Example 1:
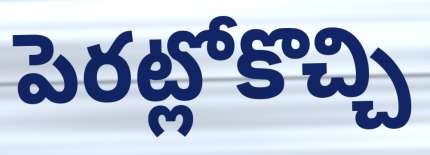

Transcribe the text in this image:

పెరట్లోకొచ్చి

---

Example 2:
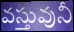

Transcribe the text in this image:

వస్తువునీ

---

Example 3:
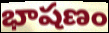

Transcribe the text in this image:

భాషణం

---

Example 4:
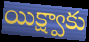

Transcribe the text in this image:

యిక్ష్వాకు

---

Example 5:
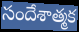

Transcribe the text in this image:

సందేశాత్మక